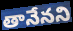
తానేనని